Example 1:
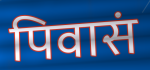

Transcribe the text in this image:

पिवासं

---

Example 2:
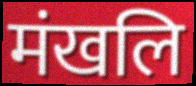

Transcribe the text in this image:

मंखलि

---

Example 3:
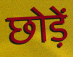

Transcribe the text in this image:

छोड़ें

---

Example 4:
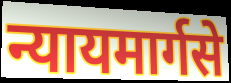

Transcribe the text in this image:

न्यायमार्गसे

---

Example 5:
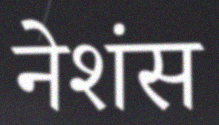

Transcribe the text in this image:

नेशंस